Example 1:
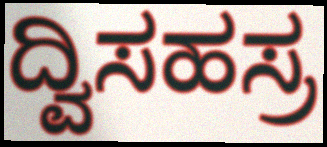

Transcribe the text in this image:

ದ್ವಿಸಹಸ್ರ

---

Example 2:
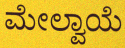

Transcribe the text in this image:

ಮೇಲ್ವಾಯೆ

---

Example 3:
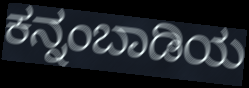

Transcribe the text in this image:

ಕನ್ನಂಬಾಡಿಯ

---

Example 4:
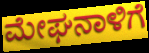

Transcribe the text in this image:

ಮೇಘನಾಳಿಗೆ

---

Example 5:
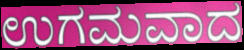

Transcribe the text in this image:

ಉಗಮವಾದ